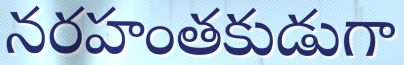
నరహంతకుడుగా